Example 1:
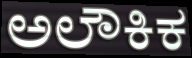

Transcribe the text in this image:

ಅಲೌಕಿಕ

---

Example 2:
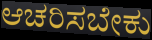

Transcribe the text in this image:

ಆಚರಿಸಬೇಕು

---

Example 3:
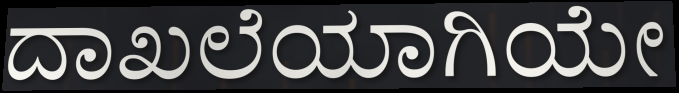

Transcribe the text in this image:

ದಾಖಲೆಯಾಗಿಯೇ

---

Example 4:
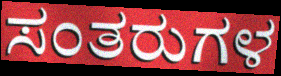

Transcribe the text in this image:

ಸಂತರುಗಳ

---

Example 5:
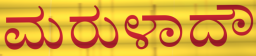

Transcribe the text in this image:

ಮರುಳಾದೌ